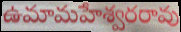
ఉమామహేశ్వరరావు